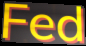
Fed